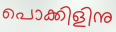
പൊക്കിളിനു